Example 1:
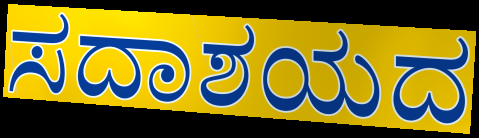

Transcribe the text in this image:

ಸದಾಶಯದ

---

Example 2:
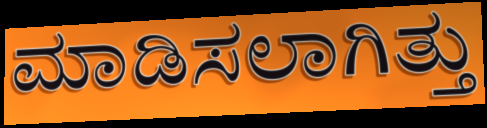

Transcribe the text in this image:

ಮಾಡಿಸಲಾಗಿತ್ತು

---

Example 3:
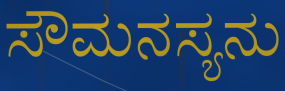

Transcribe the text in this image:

ಸೌಮನಸ್ಯನು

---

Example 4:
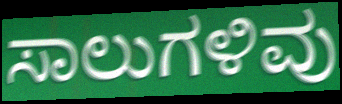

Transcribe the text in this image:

ಸಾಲುಗಳಿವು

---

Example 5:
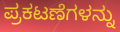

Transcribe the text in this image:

ಪ್ರಕಟಣೆಗಳನ್ನು